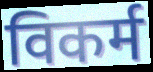
विकर्म